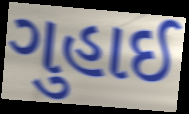
ગુહાઈ